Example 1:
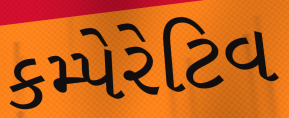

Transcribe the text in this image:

કમ્પેરેટિવ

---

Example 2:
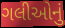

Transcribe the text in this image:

ગલીઓનું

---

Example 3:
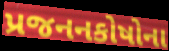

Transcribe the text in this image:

પ્રજનનકોષોના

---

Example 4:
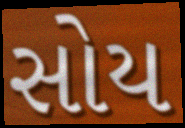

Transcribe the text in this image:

સોય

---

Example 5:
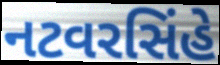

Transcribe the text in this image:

નટવરસિંહે